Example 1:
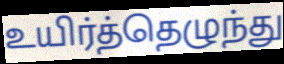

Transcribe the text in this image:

உயிர்த்தெழுந்து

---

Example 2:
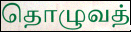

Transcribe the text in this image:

தொழுவத்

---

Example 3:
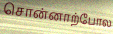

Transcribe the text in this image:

சொன்னாற்போல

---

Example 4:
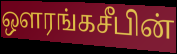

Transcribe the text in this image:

ஔரங்கசீபின்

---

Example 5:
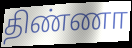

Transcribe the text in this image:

திண்ணா